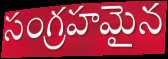
సంగ్రహమైన